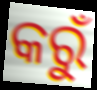
କରୁଁ